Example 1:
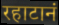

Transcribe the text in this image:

रहाटानं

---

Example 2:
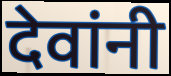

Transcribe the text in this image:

देवांनी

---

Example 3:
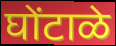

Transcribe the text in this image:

घोंटाळे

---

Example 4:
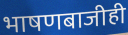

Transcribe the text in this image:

भाषणबाजीही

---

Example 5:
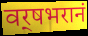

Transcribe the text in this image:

वर्षभरानं